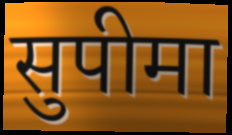
सुपीमा